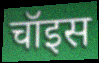
चॉइस